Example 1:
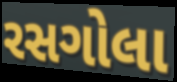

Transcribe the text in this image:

રસગોલા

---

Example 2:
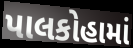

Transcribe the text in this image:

પાલકોહામાં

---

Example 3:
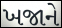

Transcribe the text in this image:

ખજાને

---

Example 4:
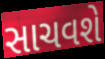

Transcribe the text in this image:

સાચવશે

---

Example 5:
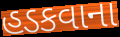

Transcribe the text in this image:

હડકવાના